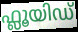
ഫ്ലൂയിഡ്